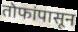
तोफांपासून